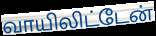
வாயிலிட்டேன்